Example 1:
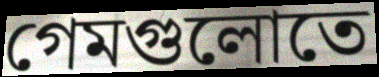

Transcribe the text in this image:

গেমগুলোতে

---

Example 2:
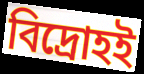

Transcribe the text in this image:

বিদ্রোহই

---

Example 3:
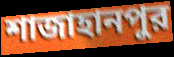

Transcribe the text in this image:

শাজাহানপুর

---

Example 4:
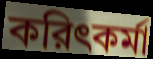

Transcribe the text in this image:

করিৎকর্মা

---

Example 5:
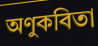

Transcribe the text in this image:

অণুকবিতা